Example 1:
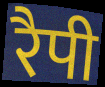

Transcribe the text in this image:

रैपी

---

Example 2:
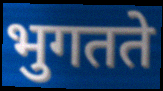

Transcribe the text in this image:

भुगतते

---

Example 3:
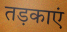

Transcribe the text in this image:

तड़काएं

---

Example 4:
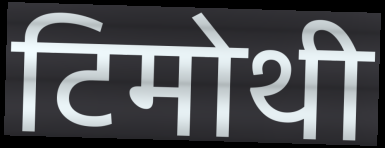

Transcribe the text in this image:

टिमोथी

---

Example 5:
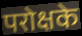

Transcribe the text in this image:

परोक्षके